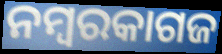
ନମ୍ବରକାଗଜ